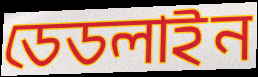
ডেডলাইন